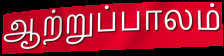
ஆற்றுப்பாலம்